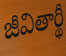
జీవితార్థీ